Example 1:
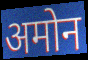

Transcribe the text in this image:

अमोन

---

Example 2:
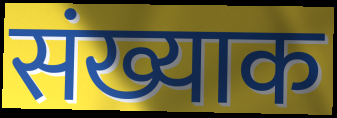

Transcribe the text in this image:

संख्याक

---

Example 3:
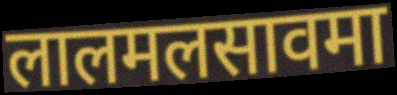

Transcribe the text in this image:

लालमलसावमा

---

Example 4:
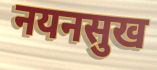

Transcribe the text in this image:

नयनसुख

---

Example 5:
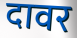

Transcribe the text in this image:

दावर